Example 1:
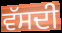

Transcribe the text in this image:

ਵੱਸਦੀ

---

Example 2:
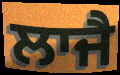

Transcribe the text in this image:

ਲਾਜੈ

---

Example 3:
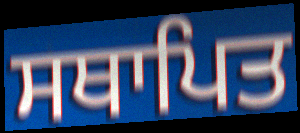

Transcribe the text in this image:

ਸਥਾਪਿਤ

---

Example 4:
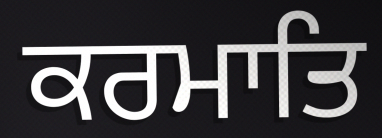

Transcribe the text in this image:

ਕਰਮਾਤਿ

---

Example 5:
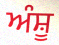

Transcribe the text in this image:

ਅੰਸ਼ੂ